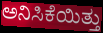
ಅನಿಸಿಕೆಯಿತ್ತು